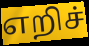
எறிச்